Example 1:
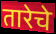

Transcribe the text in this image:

तारेचे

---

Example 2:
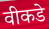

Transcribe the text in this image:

वीकडे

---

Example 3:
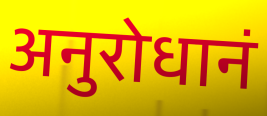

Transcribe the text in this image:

अनुरोधानं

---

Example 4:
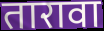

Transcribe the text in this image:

तारावा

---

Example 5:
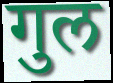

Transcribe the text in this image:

गुल